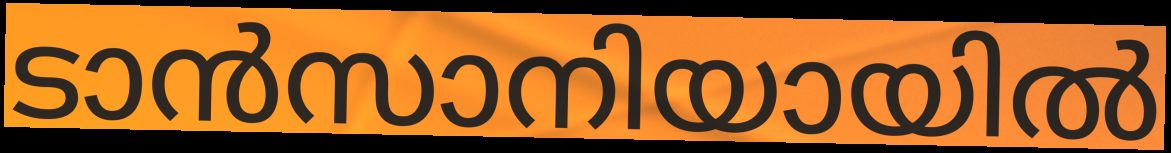
ടാൻസാനിയായിൽ